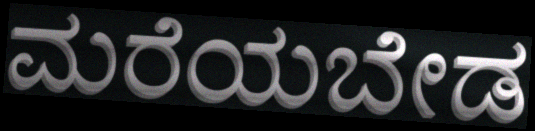
ಮರೆಯಬೇಡ